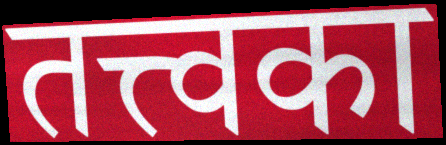
तत्त्वका